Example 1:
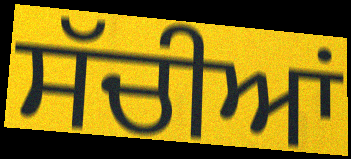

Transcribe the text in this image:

ਸੱਚੀਆਂ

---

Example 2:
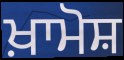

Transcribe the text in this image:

ਖ਼ਾਮੋਸ਼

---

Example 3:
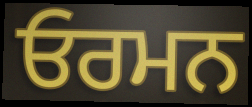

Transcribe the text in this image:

ਓਰਮਨ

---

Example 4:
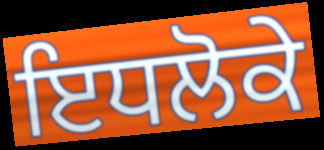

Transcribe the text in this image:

ਇਧਲੋਕੇ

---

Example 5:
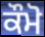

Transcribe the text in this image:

ਕੌਮੋ